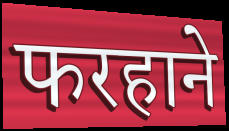
फरहाने